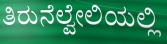
ತಿರುನೆಲ್ವೇಲಿಯಲ್ಲಿ